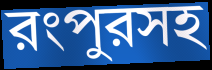
রংপুরসহ